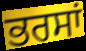
ਭਰਸਾਂ